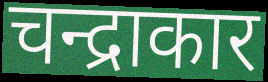
चन्द्राकार